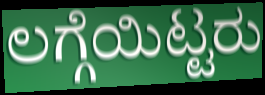
ಲಗ್ಗೆಯಿಟ್ಟರು